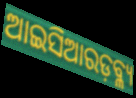
ଆଇସିଆରଡ଼ବ୍ଳ୍ୟ